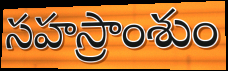
సహస్రాంశుం